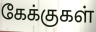
கேக்குகள்